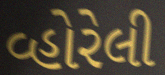
વ્હોરેલી